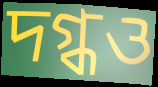
দগ্ধও